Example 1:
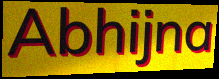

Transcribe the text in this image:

Abhijna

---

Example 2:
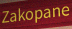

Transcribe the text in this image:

Zakopane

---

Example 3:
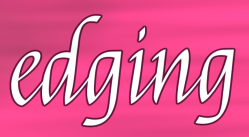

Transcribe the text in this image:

edging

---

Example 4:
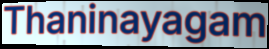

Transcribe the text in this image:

Thaninayagam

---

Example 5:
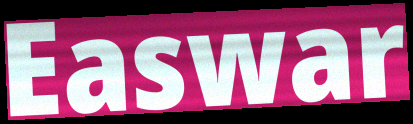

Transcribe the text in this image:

Easwar